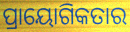
ପ୍ରାୟୋଗିକତାର